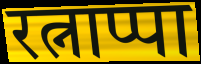
रत्नाप्पा